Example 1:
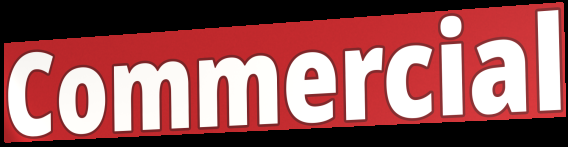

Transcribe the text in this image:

Commercial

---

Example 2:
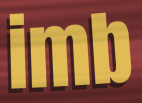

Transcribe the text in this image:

imb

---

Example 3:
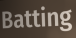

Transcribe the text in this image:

Batting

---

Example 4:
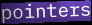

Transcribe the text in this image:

pointers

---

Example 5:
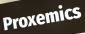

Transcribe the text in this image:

Proxemics